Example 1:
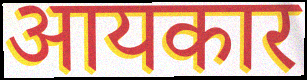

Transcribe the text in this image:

आयकार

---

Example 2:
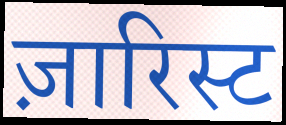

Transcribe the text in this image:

ज़ारिस्ट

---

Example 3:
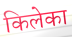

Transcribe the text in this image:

किलेका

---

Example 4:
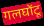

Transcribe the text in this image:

गलघोंटू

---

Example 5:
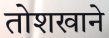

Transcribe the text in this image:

तोशखाने